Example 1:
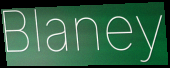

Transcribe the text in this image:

Blaney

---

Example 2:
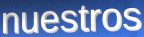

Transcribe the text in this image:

nuestros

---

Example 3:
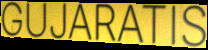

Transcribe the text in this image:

GUJARATIS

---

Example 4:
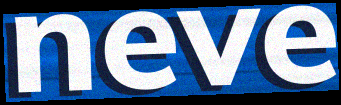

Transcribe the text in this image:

neve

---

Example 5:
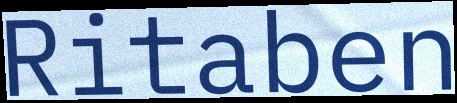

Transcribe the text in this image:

Ritaben